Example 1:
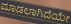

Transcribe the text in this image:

ಮಾಡಲಾಗಿದೆಯೇ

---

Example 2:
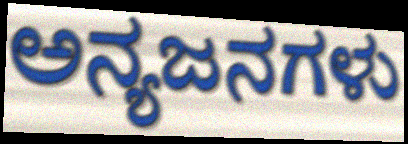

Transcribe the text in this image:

ಅನ್ಯಜನಗಳು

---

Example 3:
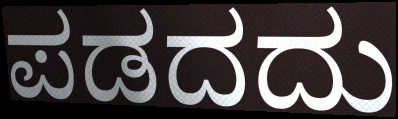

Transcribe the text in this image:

ಪಡದದು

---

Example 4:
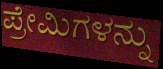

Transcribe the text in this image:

ಪ್ರೇಮಿಗಳನ್ನು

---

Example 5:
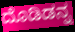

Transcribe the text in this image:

ದೊಡಿಡನ್ನ